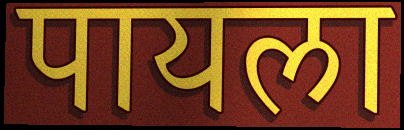
पायला